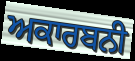
ਅਕਾਰਬਨੀ